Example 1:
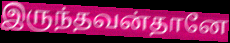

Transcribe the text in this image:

இருந்தவன்தானே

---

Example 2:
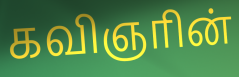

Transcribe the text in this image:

கவிஞரின்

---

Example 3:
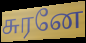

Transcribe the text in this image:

சுரனே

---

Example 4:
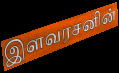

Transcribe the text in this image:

இளவரசனின்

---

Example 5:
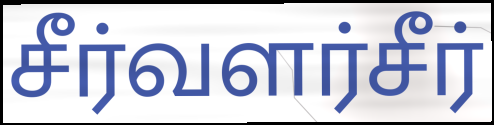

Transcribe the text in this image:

சீர்வளர்சீர்